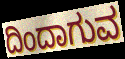
ದಿಂದಾಗುವ